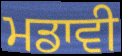
ਮਡਾਵੀ